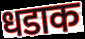
धडाक